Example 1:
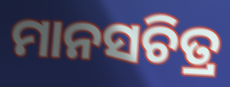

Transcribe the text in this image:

ମାନସଚିତ୍ର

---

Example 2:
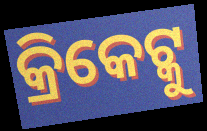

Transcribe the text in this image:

କ୍ରିକେଟ୍କୁ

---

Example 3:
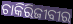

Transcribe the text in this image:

ଚାକିରିଜୀବୀର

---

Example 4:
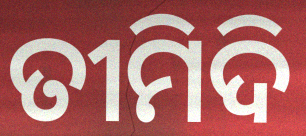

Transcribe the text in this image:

ତୀମିଦି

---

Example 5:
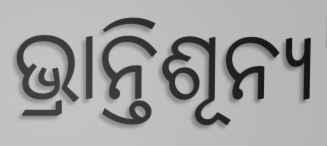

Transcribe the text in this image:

ଭ୍ରାନ୍ତିଶୂନ୍ୟ